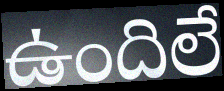
ఉందిలే